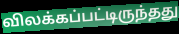
விலக்கப்பட்டிருந்தது